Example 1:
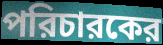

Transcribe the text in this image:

পরিচারকের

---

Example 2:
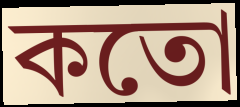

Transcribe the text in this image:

কতো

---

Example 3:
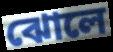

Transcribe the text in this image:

ঝোলে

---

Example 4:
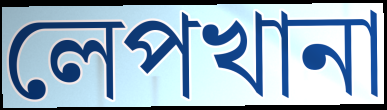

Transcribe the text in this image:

লেপখানা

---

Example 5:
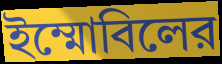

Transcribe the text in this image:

ইম্মোবিলের